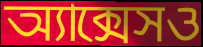
অ্যাক্সেসও